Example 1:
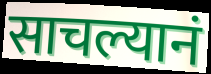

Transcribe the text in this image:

साचल्यानं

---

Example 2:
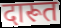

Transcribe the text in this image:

दारूत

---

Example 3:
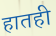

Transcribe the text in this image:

हातही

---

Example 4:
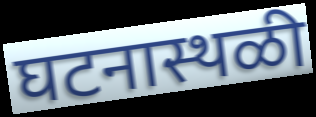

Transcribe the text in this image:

घटनास्थळी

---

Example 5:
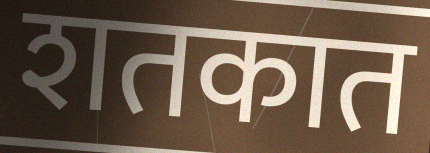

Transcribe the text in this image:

शतकात